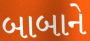
બાબાને